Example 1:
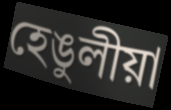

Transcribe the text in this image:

হেঙুলীয়া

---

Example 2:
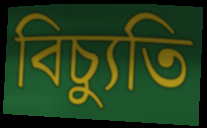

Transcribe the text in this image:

বিচ্যুতি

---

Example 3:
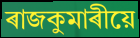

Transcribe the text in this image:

ৰাজকুমাৰীয়ে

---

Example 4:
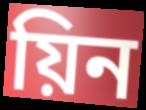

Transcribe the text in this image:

য়িন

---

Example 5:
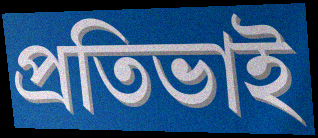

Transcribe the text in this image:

প্ৰতিভাই